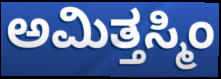
ಅಮಿತ್ತಸ್ಮಿಂ